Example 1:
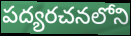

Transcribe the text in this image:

పద్యరచనలోని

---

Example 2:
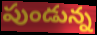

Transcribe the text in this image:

పుండున్న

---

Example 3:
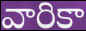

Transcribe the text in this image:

వారికా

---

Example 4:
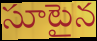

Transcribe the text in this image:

సూటైన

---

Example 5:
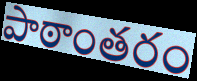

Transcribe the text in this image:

పాఠాంతరం